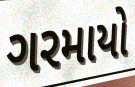
ગરમાયો